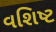
વશિષ્ટ